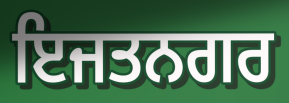
ਇਜਤਨਗਰ